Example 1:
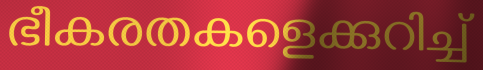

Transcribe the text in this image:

ഭീകരതകളെക്കുറിച്ച്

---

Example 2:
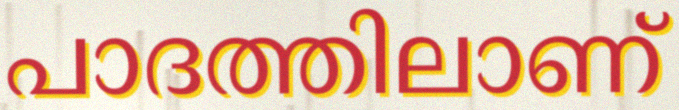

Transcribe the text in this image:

പാദത്തിലാണ്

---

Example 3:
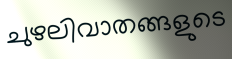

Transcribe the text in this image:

ചുഴലിവാതങ്ങളുടെ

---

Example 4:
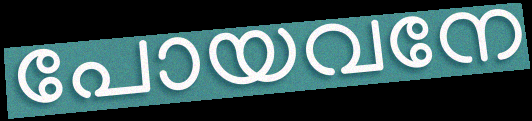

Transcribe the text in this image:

പോയവനേ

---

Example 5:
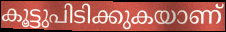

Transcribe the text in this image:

കൂട്ടുപിടിക്കുകയാണ്